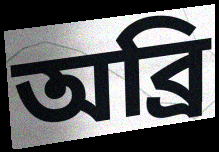
অব্ৰি